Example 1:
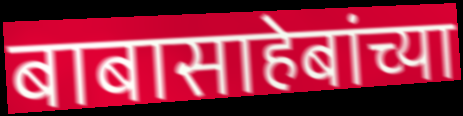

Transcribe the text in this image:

बाबासाहेबांच्‍या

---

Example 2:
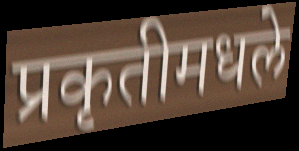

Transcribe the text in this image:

प्रकृतीमधले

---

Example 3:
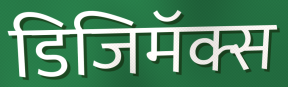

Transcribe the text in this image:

डिजिमॅक्स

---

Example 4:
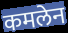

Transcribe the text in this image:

कमलेन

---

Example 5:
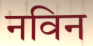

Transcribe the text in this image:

नविन